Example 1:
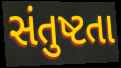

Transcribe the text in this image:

સંતુષ્ટતા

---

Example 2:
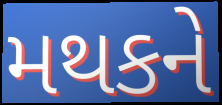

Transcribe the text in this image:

મથકને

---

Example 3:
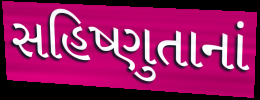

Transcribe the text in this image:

સહિષ્ણુતાનાં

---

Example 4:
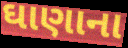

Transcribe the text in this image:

ઘાણાના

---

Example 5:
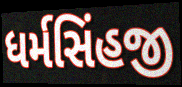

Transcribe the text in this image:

ધર્મસિંહજી